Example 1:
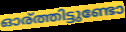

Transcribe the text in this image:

ഓര്ത്തിട്ടുണ്ടോ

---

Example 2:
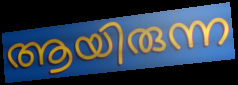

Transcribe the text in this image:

ആയിരുന്ന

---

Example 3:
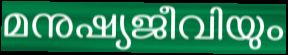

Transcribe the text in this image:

മനുഷ്യജീവിയും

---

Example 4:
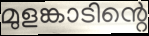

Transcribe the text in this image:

മുളങ്കാടിന്റെ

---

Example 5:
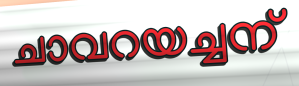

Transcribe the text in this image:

ചാവറയച്ചന്